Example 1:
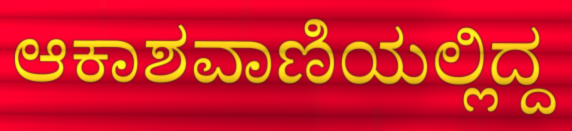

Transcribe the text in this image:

ಆಕಾಶವಾಣಿಯಲ್ಲಿದ್ದ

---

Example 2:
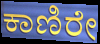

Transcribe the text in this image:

ಕಾಣಿರೇ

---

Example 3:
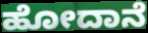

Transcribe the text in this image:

ಹೋದಾನೆ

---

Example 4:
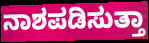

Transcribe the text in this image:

ನಾಶಪಡಿಸುತ್ತಾ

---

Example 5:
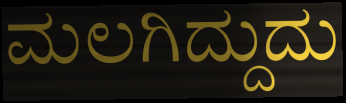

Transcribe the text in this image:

ಮಲಗಿದ್ದುದು